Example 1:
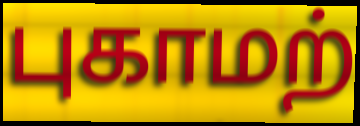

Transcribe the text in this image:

புகாமற்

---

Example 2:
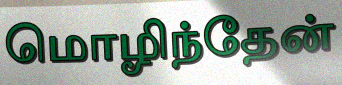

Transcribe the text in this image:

மொழிந்தேன்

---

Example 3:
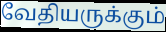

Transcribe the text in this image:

வேதியருக்கும்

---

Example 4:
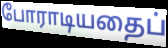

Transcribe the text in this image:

போராடியதைப்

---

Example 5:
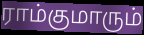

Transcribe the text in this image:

ராம்குமாரும்